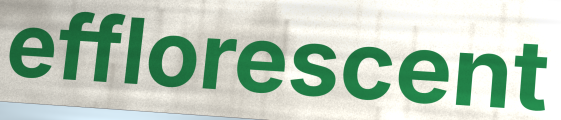
efflorescent